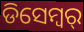
ଡିସେମ୍ବର୍